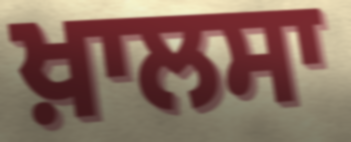
ਖ਼ਾਲਸਾ